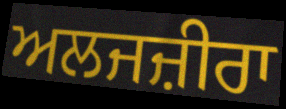
ਅਲਜਜ਼ੀਰਾ